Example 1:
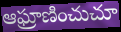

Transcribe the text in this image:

ఆఘ్రాణించుచూ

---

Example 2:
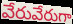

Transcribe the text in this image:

వేరువేరుగా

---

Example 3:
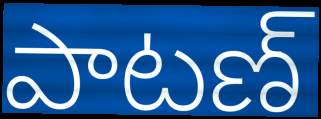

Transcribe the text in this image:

పాటణ్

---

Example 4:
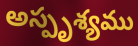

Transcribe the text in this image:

అస్పృశ్యము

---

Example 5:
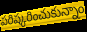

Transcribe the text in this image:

పరిష్కరించుకున్నాం